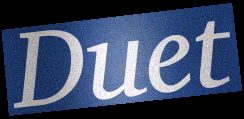
Duet